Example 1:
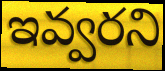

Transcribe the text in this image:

ఇవ్వరని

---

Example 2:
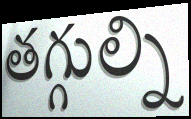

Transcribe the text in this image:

తగ్గుల్ని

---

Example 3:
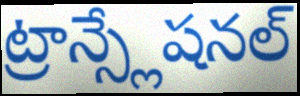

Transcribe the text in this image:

ట్రాన్స్లేషనల్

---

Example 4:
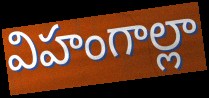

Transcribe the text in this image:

విహంగాల్లా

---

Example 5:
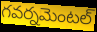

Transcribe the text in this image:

గవర్నమెంటల్